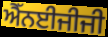
ਐੱਨਈਜੀਜੀ